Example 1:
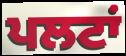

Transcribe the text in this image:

ਪਲਟਾਂ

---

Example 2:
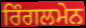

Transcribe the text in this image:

ਰਿੰਗਲਮੇਨ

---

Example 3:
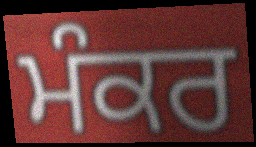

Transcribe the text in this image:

ਮੰਕਰ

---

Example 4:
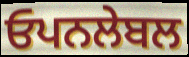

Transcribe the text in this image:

ਓਪਨਲੇਬਲ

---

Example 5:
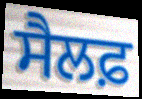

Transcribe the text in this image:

ਸੈਲਫ਼